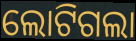
ଲୋଟିଗଲା